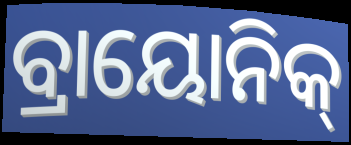
ବ୍ରାୟୋନିକ୍